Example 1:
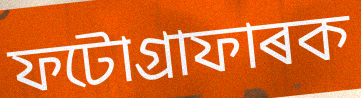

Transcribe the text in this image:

ফটোগ্ৰাফাৰক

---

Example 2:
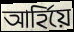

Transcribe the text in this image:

আৰ্হিয়ে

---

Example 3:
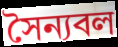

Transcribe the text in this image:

সৈন্যবল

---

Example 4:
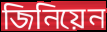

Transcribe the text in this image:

জিনিয়েন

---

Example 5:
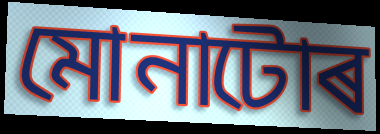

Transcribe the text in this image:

মোনাটোৰ